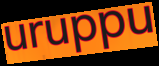
uruppu